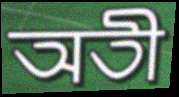
অতী